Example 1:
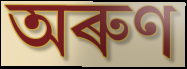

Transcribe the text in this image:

অৰুণ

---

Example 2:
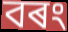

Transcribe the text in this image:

বৰং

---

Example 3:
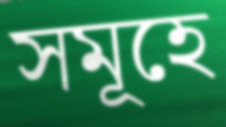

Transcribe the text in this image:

সমূহে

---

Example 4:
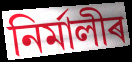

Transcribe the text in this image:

নিৰ্মালীৰ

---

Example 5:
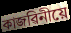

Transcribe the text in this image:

কাজৱিনীয়ে